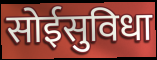
सोईसुविधा